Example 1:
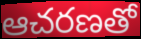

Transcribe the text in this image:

ఆచరణతో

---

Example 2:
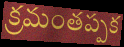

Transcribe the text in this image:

క్రమంతప్పక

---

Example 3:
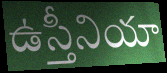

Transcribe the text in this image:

ఉస్తీనియా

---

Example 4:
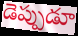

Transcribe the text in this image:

డెప్పుడూ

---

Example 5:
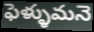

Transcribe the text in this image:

ఫెళ్ళుమనె